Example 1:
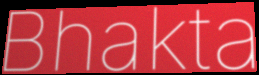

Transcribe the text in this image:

Bhakta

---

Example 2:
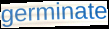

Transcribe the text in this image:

germinate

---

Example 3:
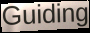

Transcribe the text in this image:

Guiding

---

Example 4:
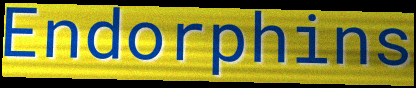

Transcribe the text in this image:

Endorphins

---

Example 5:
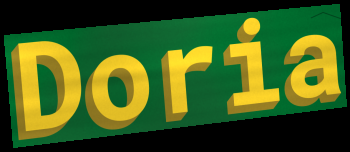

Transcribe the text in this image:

Doria